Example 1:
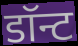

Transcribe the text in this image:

डॉन्ट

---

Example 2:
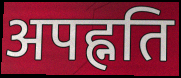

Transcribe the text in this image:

अपह्नति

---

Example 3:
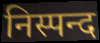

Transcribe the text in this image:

निस्पन्द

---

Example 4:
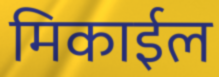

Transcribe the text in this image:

मिकाईल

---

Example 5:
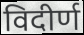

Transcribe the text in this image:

विदीर्ण